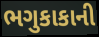
ભગુકાકાની